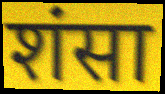
शंसा